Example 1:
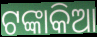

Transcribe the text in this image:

ଟଙ୍କାକିଆ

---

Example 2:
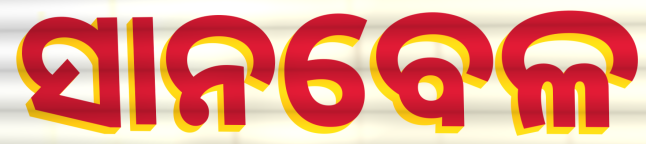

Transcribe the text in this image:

ସାନବେଳ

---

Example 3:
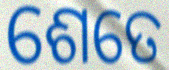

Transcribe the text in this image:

ଶେତେ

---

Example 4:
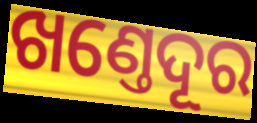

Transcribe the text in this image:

ଖଣ୍ତେଦୂର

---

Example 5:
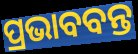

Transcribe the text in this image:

ପ୍ରଭାବବନ୍ତ